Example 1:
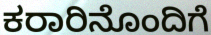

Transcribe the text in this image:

ಕರಾರಿನೊಂದಿಗೆ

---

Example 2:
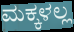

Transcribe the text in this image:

ಮಕ್ಕಳಲ್ಲ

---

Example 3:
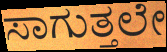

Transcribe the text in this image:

ಸಾಗುತ್ತಲೇ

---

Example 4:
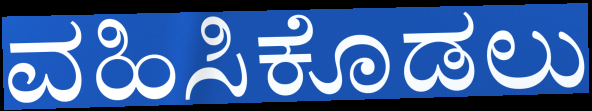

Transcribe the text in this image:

ವಹಿಸಿಕೊಡಲು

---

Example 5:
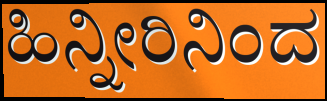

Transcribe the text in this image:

ಹಿನ್ನೀರಿನಿಂದ